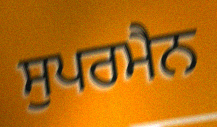
ਸੁਪਰਮੈਨ